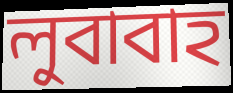
লুবাবাহ